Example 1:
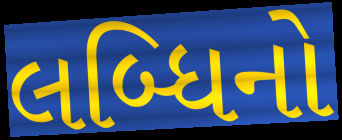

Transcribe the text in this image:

લબ્ધિનો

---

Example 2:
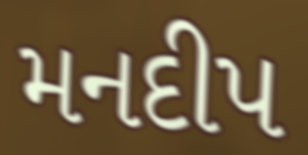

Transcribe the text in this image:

મનદીપ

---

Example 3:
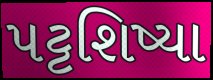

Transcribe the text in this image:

પટ્ટશિષ્યા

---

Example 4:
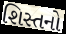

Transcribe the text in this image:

શિસ્તનો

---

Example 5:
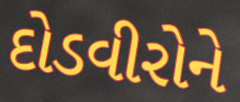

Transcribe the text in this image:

દોડવીરોને